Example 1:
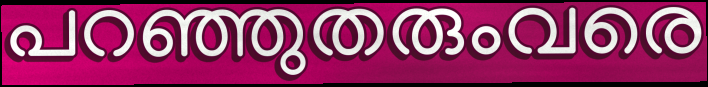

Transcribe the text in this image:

പറഞ്ഞുതരുംവരെ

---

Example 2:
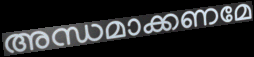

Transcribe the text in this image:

അന്ധമാക്കണമേ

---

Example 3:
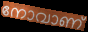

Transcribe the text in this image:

നോവാണ്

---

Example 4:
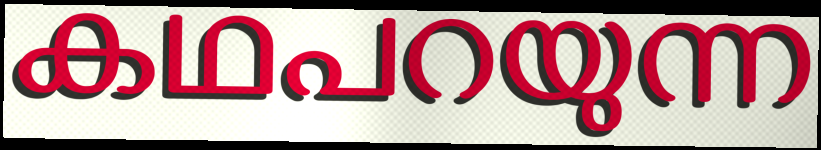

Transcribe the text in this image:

കഥപറയുന്ന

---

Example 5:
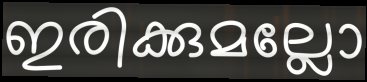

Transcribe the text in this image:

ഇരിക്കുമല്ലോ